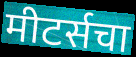
मीटर्सचा